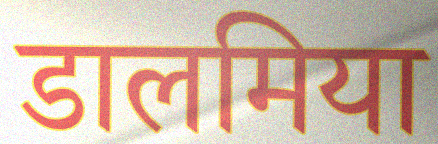
डालमिया